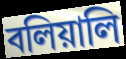
বলিয়ালি